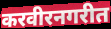
करवीरनगरीत